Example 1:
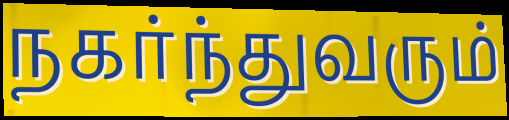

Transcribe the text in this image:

நகர்ந்துவரும்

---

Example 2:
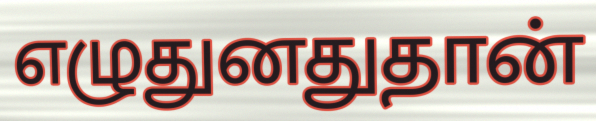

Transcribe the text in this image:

எழுதுனதுதான்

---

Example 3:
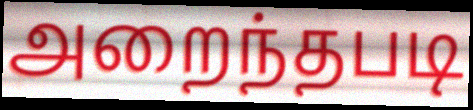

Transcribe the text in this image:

அறைந்தபடி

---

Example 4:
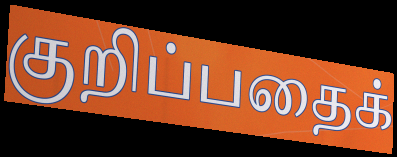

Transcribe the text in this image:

குறிப்பதைக்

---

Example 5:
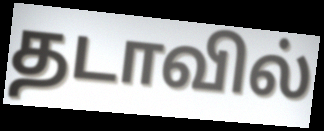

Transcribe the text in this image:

தடாவில்